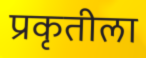
प्रकृतीला